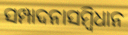
ସମ୍ପାଦନାସମ୍ବିଧାନ